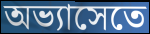
অভ্যাসেতে